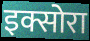
इक्सोरा